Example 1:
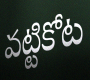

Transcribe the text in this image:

వట్టికోట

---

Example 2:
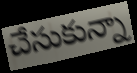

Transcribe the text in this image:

చేసుకున్నా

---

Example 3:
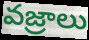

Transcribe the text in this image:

వజ్రాలు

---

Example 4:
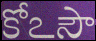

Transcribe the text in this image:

కోఽసౌ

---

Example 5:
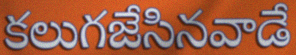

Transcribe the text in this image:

కలుగజేసినవాడే